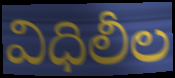
విధిలీల